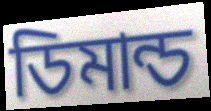
ডিমান্ড